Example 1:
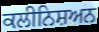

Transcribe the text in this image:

ਕਲੀਨਿਸ਼ਅਨ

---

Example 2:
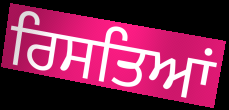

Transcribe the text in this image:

ਰਿਸਤਿਆਂ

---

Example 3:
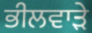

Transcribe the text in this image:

ਭੀਲਵਾੜੇ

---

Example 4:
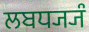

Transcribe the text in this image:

ਲਬਧ੍ਯ੍ਯੰ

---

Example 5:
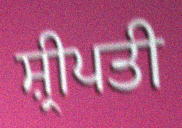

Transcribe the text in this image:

ਸ਼੍ਰੀਪਤੀ